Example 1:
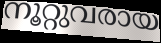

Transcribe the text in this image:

നൂറ്റുവരായ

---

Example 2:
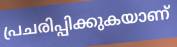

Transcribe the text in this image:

പ്രചരിപ്പിക്കുകയാണ്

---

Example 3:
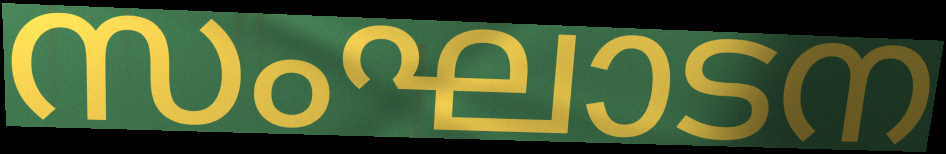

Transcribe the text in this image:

സംഘാടന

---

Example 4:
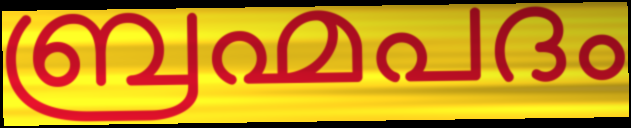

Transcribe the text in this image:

ബ്രഹ്മപദം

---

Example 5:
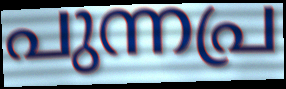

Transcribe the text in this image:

പുന്നപ്ര